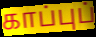
காப்புப்